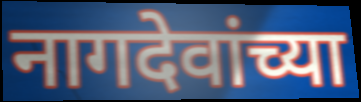
नागदेवांच्या